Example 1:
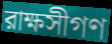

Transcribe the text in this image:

রাক্ষসীগণ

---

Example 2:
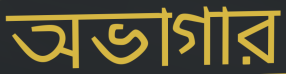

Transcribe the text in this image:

অভাগার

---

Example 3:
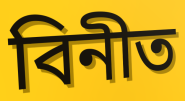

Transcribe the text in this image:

বিনীত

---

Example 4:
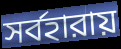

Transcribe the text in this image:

সর্বহারায়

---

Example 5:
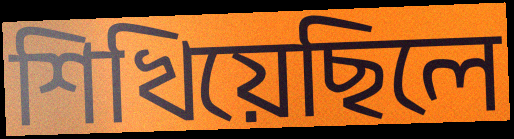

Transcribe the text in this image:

শিখিয়েছিলে